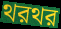
থরথর